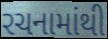
રચનામાંથી